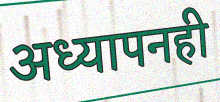
अध्यापनही